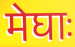
मेघाः